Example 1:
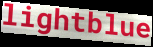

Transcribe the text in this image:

lightblue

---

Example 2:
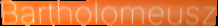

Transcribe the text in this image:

Bartholomeusz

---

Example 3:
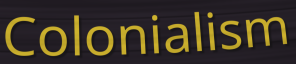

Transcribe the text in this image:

Colonialism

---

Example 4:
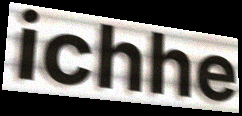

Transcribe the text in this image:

ichhe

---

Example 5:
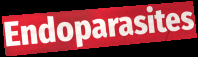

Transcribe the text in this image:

Endoparasites